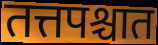
तत्तपश्चात